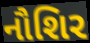
નૌશિર